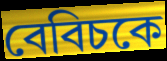
বেবিচকে